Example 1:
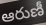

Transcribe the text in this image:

ఆరుణీ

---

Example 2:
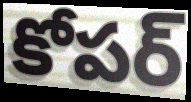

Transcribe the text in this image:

కోపర్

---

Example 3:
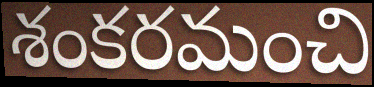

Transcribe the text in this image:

శంకరమంచి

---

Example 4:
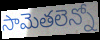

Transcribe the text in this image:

సామెతలెన్నో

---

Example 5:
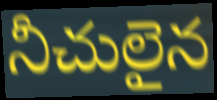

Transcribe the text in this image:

నీచులైన